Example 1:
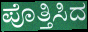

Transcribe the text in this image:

ಪೊತ್ತಿಸಿದ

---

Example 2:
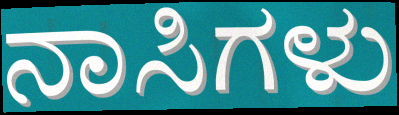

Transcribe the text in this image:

ನಾಸಿಗಳು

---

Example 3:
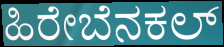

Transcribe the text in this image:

ಹಿರೇಬೆನಕಲ್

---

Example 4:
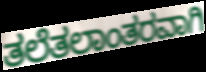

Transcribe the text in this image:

ತಲೆತಲಾಂತರವಾಗಿ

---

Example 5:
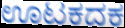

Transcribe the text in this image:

ಊಟಕದಕ